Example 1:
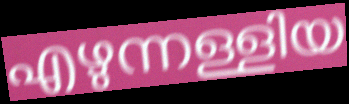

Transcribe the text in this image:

എഴുന്നള്ളിയ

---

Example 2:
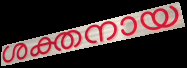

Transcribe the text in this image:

ശക്തനായ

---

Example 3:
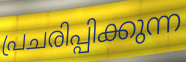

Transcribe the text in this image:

പ്രചരിപ്പിക്കുന്ന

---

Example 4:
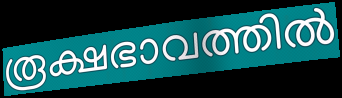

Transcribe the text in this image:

രൂക്ഷഭാവത്തിൽ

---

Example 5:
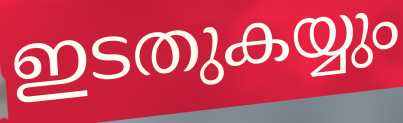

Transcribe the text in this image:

ഇടതുകയ്യും